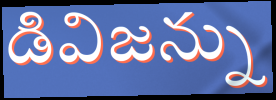
డివిజన్ను